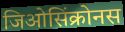
जिओसिंक्रोनस